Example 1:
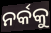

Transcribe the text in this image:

ନର୍କକୁ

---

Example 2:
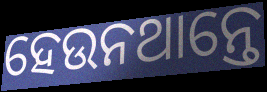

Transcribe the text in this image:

ହେଉନଥାନ୍ତେ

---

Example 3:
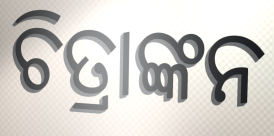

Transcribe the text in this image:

ଚିତ୍ରାଙ୍କନ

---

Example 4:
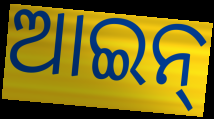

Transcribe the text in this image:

ଆଇନ୍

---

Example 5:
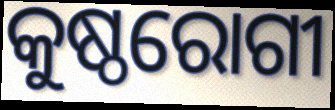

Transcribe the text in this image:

କୁଷ୍ଠରୋଗୀ